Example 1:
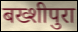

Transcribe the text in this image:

बख्शीपुरा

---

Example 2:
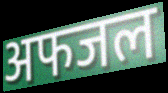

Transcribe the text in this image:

अफजल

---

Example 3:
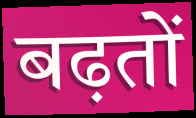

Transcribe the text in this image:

बढ़तों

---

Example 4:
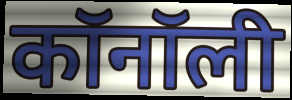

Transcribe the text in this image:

कॉनॉली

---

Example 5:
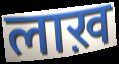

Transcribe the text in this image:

लाख़